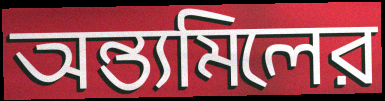
অন্ত্যমিলের